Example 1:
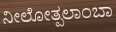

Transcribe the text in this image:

ನೀಲೋತ್ಪಲಾಂಬಾ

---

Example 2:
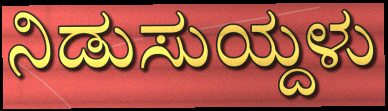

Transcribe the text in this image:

ನಿಡುಸುಯ್ದಳು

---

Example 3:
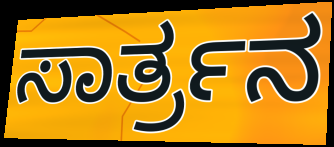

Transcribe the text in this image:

ಸಾರ್ತ್ರನ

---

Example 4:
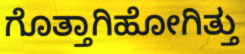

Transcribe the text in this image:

ಗೊತ್ತಾಗಿಹೋಗಿತ್ತು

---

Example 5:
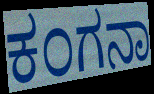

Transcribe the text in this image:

ಕಂಗನಾ